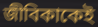
জীবিকাকেই